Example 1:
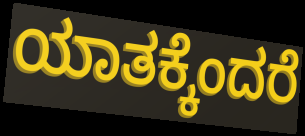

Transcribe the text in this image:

ಯಾತಕ್ಕೆಂದರೆ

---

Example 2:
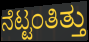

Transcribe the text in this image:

ನೆಟ್ಟಂತಿತ್ತು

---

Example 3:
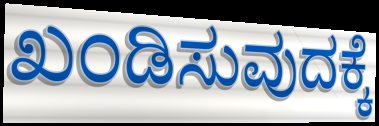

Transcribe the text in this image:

ಖಂಡಿಸುವುದಕ್ಕೆ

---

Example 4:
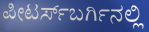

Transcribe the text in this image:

ಪೀಟರ್ಸ್‍ಬರ್ಗಿನಲ್ಲಿ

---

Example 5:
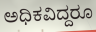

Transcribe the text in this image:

ಅಧಿಕವಿದ್ದರೂ